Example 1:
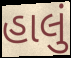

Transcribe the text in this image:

હાલું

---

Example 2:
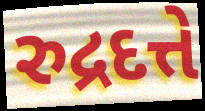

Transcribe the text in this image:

રુદ્રદત્તે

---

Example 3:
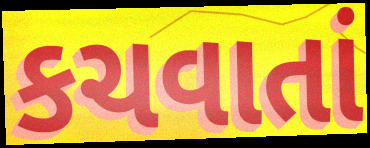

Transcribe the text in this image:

કચવાતાં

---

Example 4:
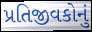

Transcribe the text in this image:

પ્રતિજીવકોનું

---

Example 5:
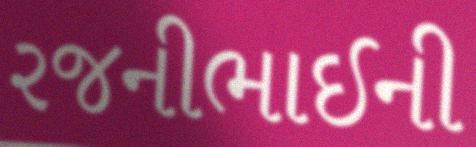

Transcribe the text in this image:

રજનીભાઈની